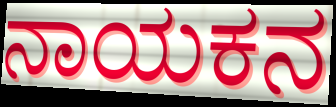
ನಾಯಕನ